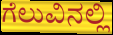
ಗೆಲುವಿನಲ್ಲಿ